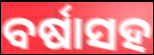
ବର୍ଷାସହ